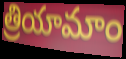
త్రియామాం